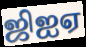
ஜிஐஏ